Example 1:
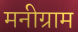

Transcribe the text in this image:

मनीग्राम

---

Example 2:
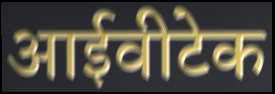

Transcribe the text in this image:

आईवीटेक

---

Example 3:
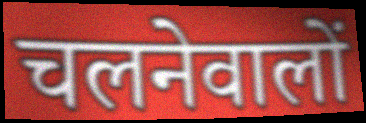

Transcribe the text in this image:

चलनेवालों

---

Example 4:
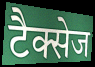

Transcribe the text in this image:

टैक्सेज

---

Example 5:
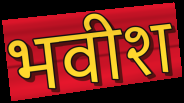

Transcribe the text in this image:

भवीश